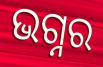
ଭଗ୍ନର